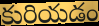
కురియడం